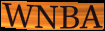
WNBA